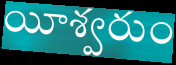
యీశ్వరుం